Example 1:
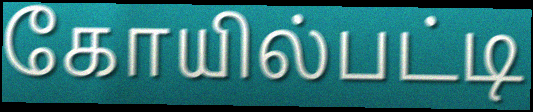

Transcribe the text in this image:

கோயில்பட்டி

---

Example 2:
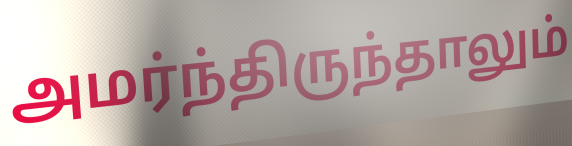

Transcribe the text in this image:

அமர்ந்திருந்தாலும்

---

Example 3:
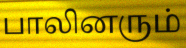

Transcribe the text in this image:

பாலினரும்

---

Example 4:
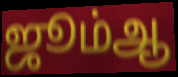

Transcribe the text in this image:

ஜூம்ஆ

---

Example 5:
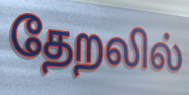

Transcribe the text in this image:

தேறலில்